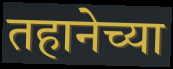
तहानेच्या